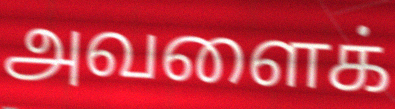
அவளைக்